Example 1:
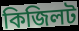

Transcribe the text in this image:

কিজিলট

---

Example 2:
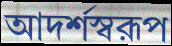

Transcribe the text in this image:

আদর্শস্বরূপ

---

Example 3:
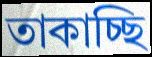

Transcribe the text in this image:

তাকাচ্ছি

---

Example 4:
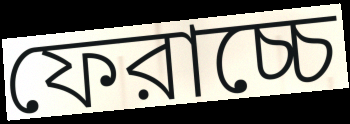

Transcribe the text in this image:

ফেরাচ্চে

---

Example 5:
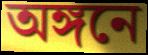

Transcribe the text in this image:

অঙ্গনে